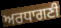
ਅਰਧਾਗਣੀ